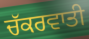
ਚੱਕਰਵਾਤੀ